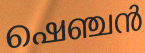
ഷെഞ്ചൻ